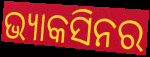
ଭ୍ୟାକସିନର